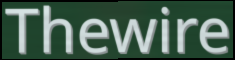
Thewire